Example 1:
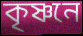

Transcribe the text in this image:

কৃষ্ণনে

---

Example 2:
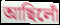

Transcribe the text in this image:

আছিলোঁ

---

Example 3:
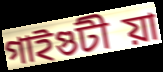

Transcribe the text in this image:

গাইগুটীয়া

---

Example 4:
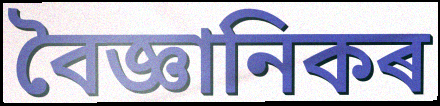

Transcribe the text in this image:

বৈজ্ঞানিকৰ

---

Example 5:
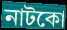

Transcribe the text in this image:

নাটকো